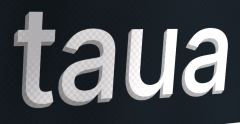
taua